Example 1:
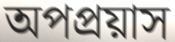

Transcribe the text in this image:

অপপ্রয়াস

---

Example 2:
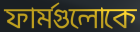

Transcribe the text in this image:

ফার্মগুলোকে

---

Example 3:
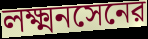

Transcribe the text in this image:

লক্ষ্মনসেনের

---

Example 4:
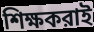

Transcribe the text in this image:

শিক্ষকরাই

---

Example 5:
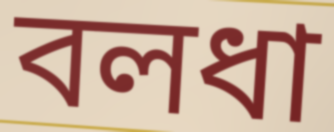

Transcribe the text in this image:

বলধা